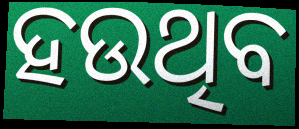
ହଉଥିବ